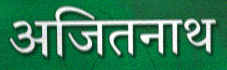
अजितनाथ